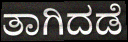
ತಾಗಿದಡೆ